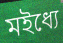
মইধ্যে